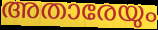
അതാരേയും